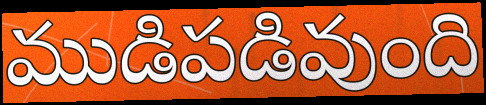
ముడిపడివుంది